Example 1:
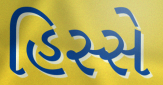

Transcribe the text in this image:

હિસ્સે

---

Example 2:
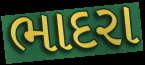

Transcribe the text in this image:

ભાદરા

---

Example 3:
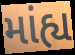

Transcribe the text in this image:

માંહ્ય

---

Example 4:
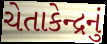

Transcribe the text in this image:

ચેતાકેન્દ્રનું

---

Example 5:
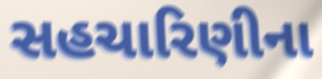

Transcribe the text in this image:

સહચારિણીના